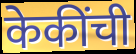
केकींची